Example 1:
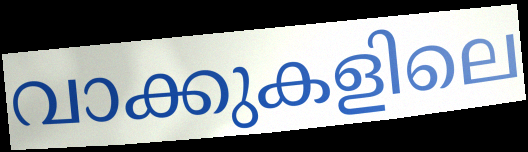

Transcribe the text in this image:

വാക്കുകളിലെ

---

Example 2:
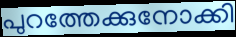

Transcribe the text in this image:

പുറത്തേക്കുനോക്കി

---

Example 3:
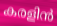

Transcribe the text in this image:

കരളിൻ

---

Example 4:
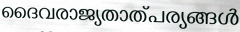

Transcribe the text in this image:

ദൈവരാജ്യതാത്പര്യങ്ങൾ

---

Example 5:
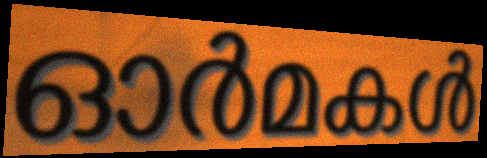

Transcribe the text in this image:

ഓർമകൾ